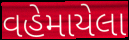
વહેમાયેલા